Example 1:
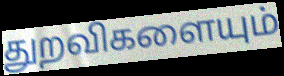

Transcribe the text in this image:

துறவிகளையும்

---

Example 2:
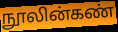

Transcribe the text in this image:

நூலின்கண்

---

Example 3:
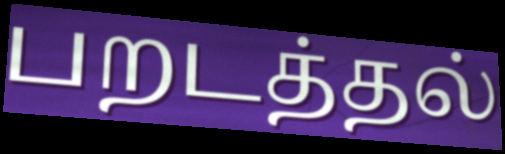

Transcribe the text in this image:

பறடத்தல்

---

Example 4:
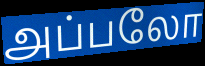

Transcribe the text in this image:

அப்பலோ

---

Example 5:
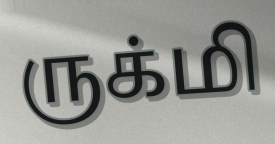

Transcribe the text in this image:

ருக்மி